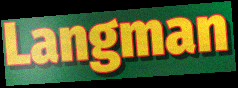
Langman